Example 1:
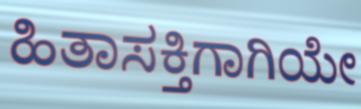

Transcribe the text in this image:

ಹಿತಾಸಕ್ತಿಗಾಗಿಯೇ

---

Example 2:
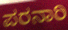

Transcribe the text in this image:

ಪರನಾರಿ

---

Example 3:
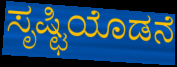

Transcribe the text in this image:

ಸೃಷ್ಟಿಯೊಡನೆ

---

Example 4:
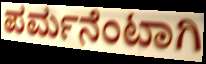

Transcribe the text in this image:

ಪರ್ಮನೆಂಟಾಗಿ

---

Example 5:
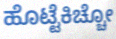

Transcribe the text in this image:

ಹೊಟ್ಟೆಕಿಚ್ಚೋ